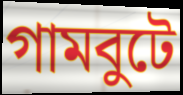
গামবুটে